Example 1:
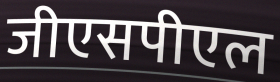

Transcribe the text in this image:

जीएसपीएल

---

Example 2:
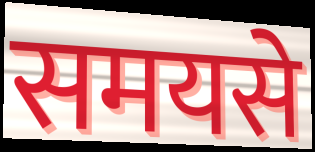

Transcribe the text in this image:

समयसे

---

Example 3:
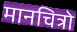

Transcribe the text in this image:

मानचित्रो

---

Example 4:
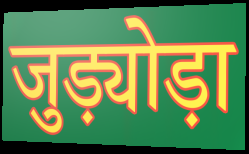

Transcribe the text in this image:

जुड़्योड़ा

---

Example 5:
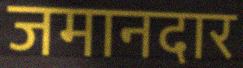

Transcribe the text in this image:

जमानदार